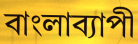
বাংলাব্যাপী